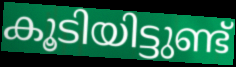
കൂടിയിട്ടുണ്ട്